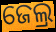
ଜେଲ୍ର